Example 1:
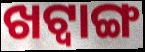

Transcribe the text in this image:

ଖଟ୍ଵାଙ୍ଗ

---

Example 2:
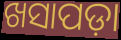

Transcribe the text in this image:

ଖସାପଡ଼ା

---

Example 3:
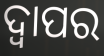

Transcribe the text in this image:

ଦ୍ୱାପର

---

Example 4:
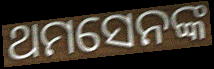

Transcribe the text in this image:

ଥମସେନଙ୍କ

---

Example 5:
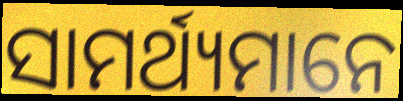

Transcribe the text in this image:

ସାମର୍ଥ୍ୟମାନେ